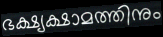
ഭക്ഷ്യക്ഷാമത്തിനും